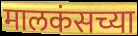
मालकंसच्या